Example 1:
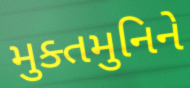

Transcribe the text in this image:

મુક્તમુનિને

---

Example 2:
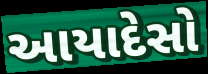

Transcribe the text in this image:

આયાદેસો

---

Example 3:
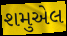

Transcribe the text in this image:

શમુએલ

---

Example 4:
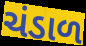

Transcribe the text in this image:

ચંડાળ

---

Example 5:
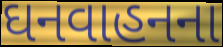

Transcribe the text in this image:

ઘનવાહનના